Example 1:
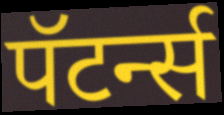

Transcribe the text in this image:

पॅटर्न्स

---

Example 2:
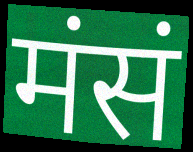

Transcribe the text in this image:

मंसं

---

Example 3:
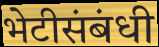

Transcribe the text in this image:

भेटीसंबंधी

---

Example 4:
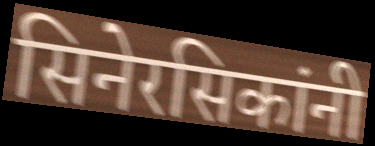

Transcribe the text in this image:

सिनेरसिकांनी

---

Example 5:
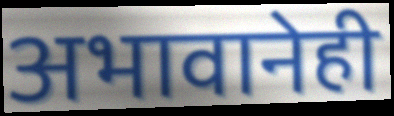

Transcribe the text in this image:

अभावानेही